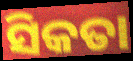
ସିକତା